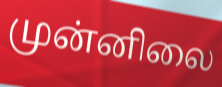
முன்னிலை